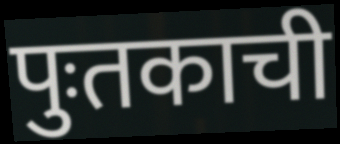
पुःतकाची